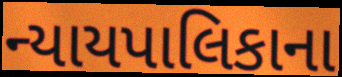
ન્યાયપાલિકાના